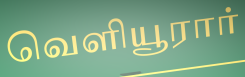
வெளியூரார்